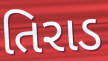
તિરાડ